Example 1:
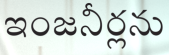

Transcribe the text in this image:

ఇంజనీర్లను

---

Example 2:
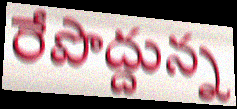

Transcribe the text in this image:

రేపొద్దున్న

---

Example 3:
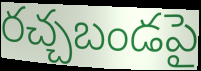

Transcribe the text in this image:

రచ్చబండపై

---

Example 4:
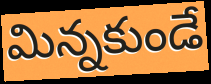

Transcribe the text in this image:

మిన్నకుండే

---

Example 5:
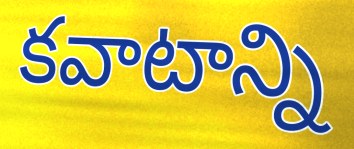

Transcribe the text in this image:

కవాటాన్ని